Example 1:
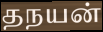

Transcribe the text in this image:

தநயன்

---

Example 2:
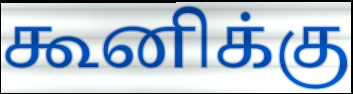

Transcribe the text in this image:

கூனிக்கு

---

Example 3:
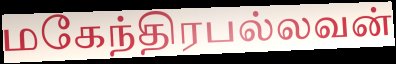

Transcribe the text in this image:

மகேந்திரபல்லவன்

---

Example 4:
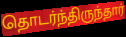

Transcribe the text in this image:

தொடர்ந்திருந்தார்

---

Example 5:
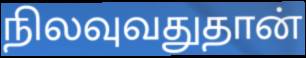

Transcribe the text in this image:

நிலவுவதுதான்